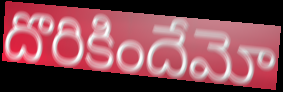
దొరికిందేమో